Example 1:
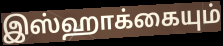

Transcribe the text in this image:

இஸ்ஹாக்கையும்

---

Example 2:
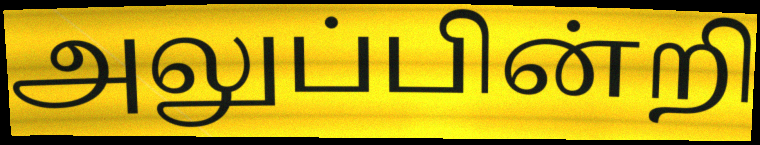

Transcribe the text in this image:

அலுப்பின்றி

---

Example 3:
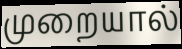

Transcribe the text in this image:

முறையால்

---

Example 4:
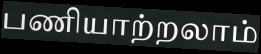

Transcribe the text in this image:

பணியாற்றலாம்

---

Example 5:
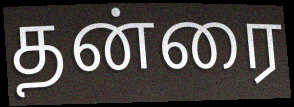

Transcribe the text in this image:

தன்ரை